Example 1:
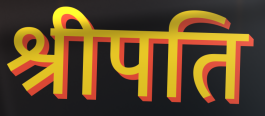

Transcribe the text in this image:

श्रीपति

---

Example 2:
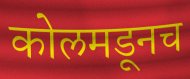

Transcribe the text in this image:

कोलमडूनच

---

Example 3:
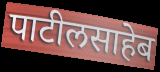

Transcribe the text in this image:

पाटीलसाहेब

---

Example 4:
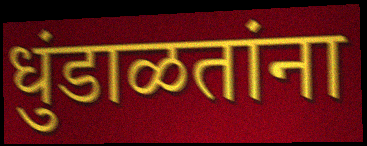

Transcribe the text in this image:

धुंडाळतांना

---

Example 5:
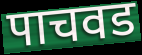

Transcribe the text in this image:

पाचवड